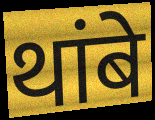
थांबे